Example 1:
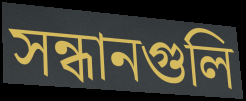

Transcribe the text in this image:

সন্ধানগুলি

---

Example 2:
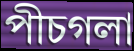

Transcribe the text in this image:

পীচগলা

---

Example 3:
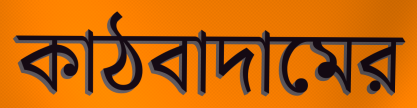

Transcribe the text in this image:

কাঠবাদামের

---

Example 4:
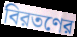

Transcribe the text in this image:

বিরতণের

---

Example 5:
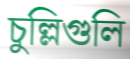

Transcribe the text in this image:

চুল্লিগুলি